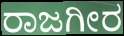
ರಾಜಗೀರ